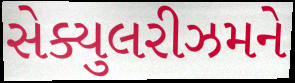
સેક્યુલરીઝમને